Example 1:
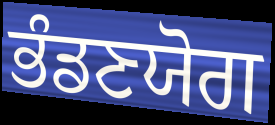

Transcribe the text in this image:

ਭੰਡਣਯੋਗ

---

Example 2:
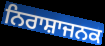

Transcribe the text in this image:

ਨਿਰਾਸ਼ਾਜਨਕ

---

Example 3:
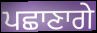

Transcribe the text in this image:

ਪਛਾਣਾਗੇ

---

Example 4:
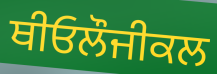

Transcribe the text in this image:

ਥੀਓਲੌਜੀਕਲ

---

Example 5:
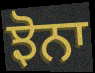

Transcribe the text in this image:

ਝੋਨਾ